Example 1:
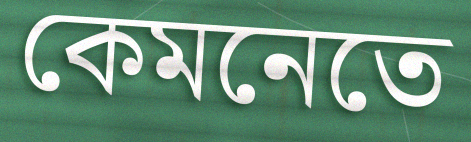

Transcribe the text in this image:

কেমনেতে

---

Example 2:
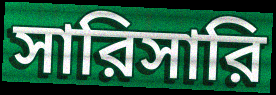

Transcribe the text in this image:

সারিসারি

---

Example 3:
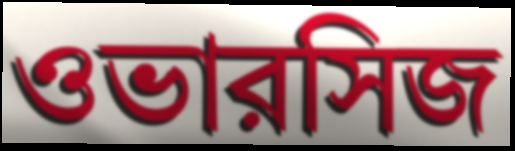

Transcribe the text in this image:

ওভারসিজ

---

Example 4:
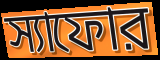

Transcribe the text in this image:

স্যাফোর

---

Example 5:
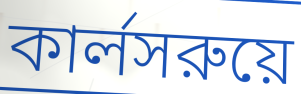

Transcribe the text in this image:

কার্লসরুয়ে